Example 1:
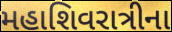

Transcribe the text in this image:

મહાશિવરાત્રીના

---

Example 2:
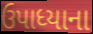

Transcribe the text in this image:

ઉપાધ્યાના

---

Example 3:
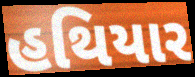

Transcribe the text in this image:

હથિયાર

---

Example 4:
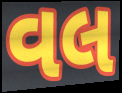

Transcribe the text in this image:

વલ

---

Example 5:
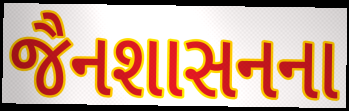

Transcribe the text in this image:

જૈનશાસનના